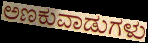
ಅಣಕುವಾಡುಗಳು